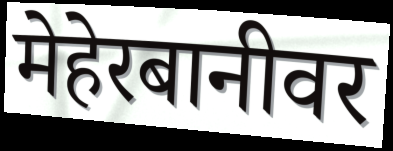
मेहेरबानीवर